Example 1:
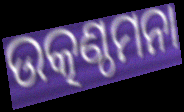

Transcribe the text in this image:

ଉତ୍କଣ୍ଠମନା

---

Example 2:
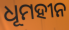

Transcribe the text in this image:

ଧୂମହୀନ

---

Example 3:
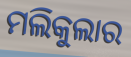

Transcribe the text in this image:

ମଲିକୁଲାର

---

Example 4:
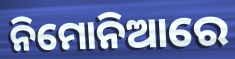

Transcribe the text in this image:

ନିମୋନିଆରେ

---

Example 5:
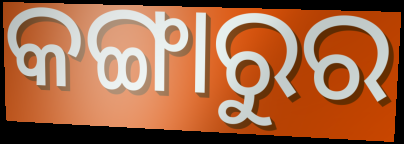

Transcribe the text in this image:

କଙ୍ଗାରୁର